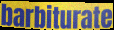
barbiturate